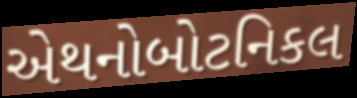
એથનોબોટનિકલ